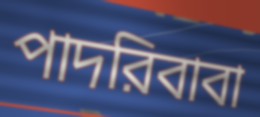
পাদরিবাবা